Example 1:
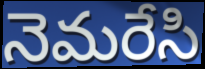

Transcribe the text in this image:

నెమరేసి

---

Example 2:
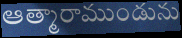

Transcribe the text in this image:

ఆత్మారాముండును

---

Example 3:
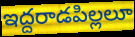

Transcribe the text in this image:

ఇద్దరాడపిల్లలూ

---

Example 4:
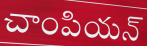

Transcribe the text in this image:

చాంపియన్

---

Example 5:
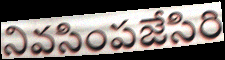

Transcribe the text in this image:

నివసింపజేసిరి